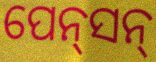
ପେନ୍‍ସନ୍